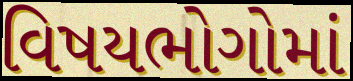
વિષયભોગોમાં